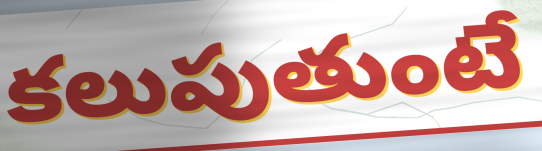
కలుపుతుంటే